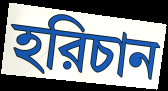
হরিচান